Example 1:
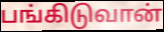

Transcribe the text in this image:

பங்கிடுவான்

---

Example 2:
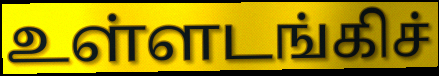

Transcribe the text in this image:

உள்ளடங்கிச்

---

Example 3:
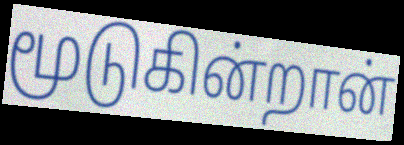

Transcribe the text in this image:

மூடுகின்றான்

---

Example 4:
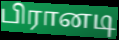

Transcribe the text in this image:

பிரானடி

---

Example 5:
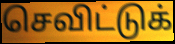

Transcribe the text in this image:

செவிட்டுக்